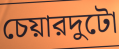
চেয়ারদুটো